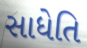
સાધેતિ